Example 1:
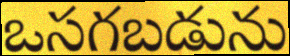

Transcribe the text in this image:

ఒసగబడును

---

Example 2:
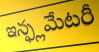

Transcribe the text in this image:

ఇన్ఫ్లమేటరీ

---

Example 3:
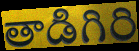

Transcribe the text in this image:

తాడిగిరి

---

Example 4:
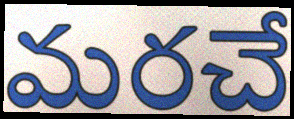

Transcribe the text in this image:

మరచే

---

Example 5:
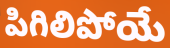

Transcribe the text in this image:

పిగిలిపోయే